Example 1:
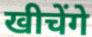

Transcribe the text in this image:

खीचेंगे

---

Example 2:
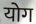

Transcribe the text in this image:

योग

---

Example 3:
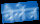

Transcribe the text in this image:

चैलेंज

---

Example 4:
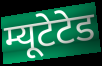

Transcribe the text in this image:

म्यूटेटेड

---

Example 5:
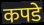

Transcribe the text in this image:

कपडे